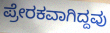
ಪ್ರೇರಕವಾಗಿದ್ದವು